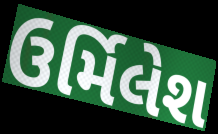
ઉર્મિલેશ